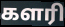
களரி